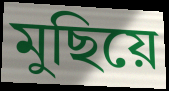
মুছিয়ে